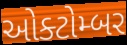
ઓક્ટોમ્બર